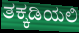
ತಕ್ಕಡಿಯಲಿ